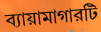
ব্যায়ামাগারটি